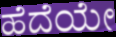
ಹೆದೆಯೇ